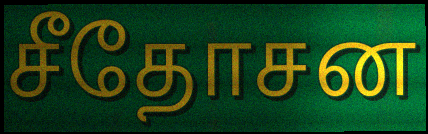
சீதோசன